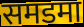
समडमा